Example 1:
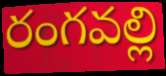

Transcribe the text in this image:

రంగవల్లి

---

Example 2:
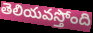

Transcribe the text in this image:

తెలియవస్తోంది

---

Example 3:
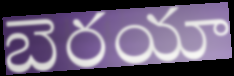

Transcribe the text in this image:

బెరయా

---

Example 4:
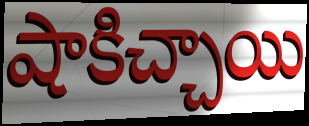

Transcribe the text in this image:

షాకిచ్చాయి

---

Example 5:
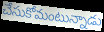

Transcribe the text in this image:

చేసుకోమంటున్నాడు